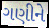
ગણીને